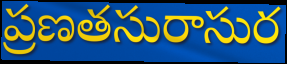
ప్రణతసురాసుర